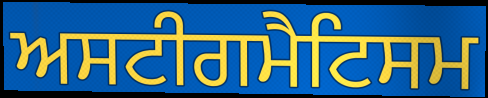
ਅਸਟੀਗਮੈਟਿਸਮ